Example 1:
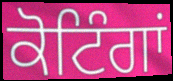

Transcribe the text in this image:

ਕੋਟਿੰਗਾਂ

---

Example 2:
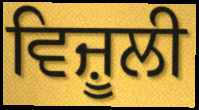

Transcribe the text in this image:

ਵਿਜ਼ੂਲੀ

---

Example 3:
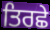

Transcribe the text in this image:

ਤਿਰਛੇ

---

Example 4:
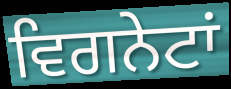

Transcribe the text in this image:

ਵਿਗਨੇਟਾਂ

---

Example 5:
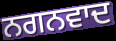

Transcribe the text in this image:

ਨਗਨਵਾਦ